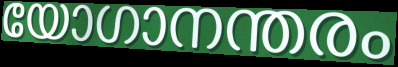
യോഗാനന്തരം